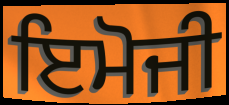
ਇਮੋਜੀ